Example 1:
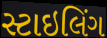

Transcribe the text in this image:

સ્ટાઇલિંગ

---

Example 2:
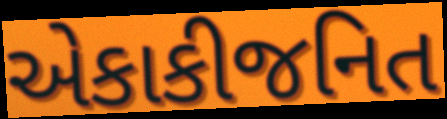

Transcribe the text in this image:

એકાકીજનિત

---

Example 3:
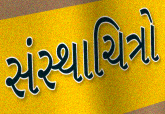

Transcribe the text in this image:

સંસ્થાચિત્રો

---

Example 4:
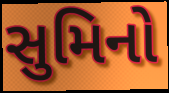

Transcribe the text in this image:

સુમિનો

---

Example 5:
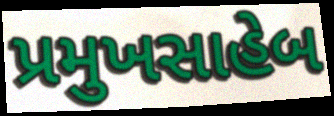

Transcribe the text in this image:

પ્રમુખસાહેબ